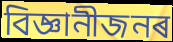
বিজ্ঞানীজনৰ